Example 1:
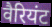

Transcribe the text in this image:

वैरियंट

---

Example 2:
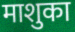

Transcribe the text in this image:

माशुका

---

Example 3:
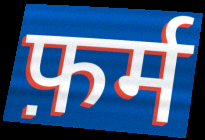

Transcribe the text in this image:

फ़र्म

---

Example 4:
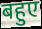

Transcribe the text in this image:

बहुए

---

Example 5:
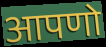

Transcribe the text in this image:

आपणो